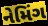
નેમિંગ